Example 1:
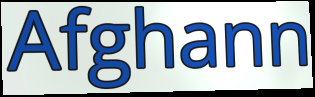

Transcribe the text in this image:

Afghann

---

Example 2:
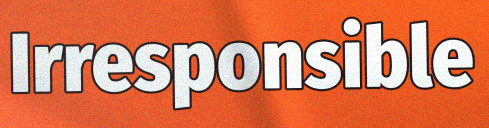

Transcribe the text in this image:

Irresponsible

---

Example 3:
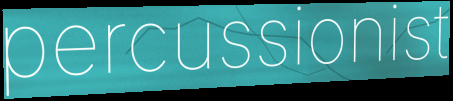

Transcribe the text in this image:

percussionist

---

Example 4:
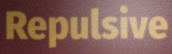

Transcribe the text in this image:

Repulsive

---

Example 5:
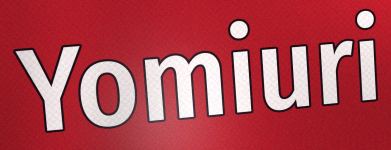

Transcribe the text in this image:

Yomiuri